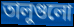
তালুগুলো